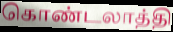
கொண்டலாத்தி